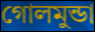
গোলমুন্ডা